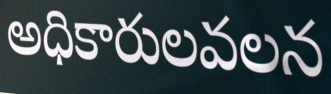
అధికారులవలన